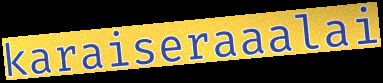
karaiseraaalai